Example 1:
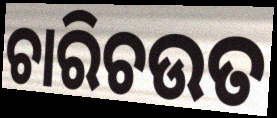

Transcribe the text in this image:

ଚାରିଚଉତ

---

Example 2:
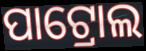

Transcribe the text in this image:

ପାଟ୍ରୋଲ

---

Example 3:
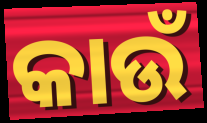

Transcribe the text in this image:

କାଉଁ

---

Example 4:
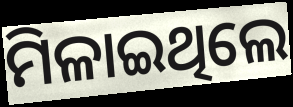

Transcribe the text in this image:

ମିଳାଇଥିଲେ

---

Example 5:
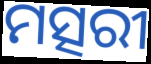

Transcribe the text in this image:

ମତ୍ସରୀ